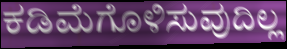
ಕಡಿಮೆಗೊಳಿಸುವುದಿಲ್ಲ